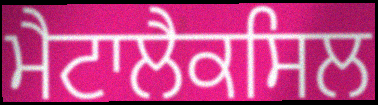
ਮੈਟਾਲੈਕਸਿਲ